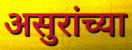
असुरांच्या